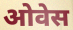
ओवेस